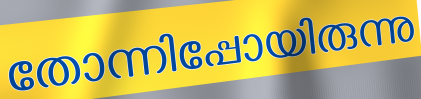
തോന്നിപ്പോയിരുന്നു